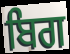
ਬਿਗ